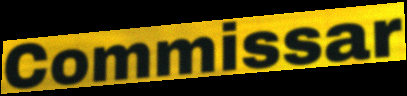
Commissar